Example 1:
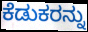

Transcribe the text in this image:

ಕೆಡುಕರನ್ನು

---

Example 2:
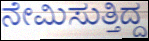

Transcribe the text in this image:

ನೇಮಿಸುತ್ತಿದ್ದ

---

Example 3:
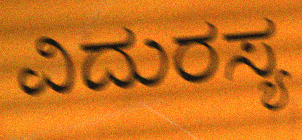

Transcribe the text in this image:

ವಿದುರಸ್ಯ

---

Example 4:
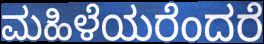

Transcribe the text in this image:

ಮಹಿಳೆಯರೆಂದರೆ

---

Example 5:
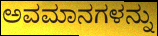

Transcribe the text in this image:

ಅವಮಾನಗಳನ್ನು